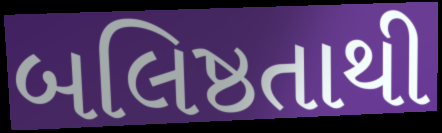
બલિષ્ઠતાથી